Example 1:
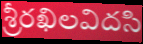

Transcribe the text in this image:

శ్రీరఖిలవిదసి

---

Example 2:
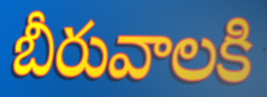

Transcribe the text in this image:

బీరువాలకి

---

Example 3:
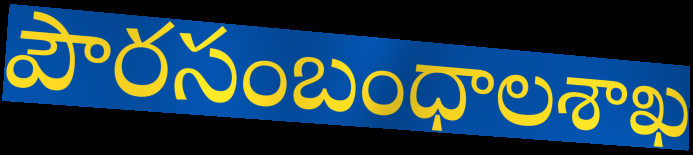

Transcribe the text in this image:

పౌరసంబంధాలశాఖ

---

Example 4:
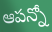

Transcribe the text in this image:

ఆపన్నో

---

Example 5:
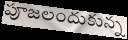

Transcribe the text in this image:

పూజలందుకున్న